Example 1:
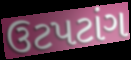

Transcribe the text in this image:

ઉટપટાંગ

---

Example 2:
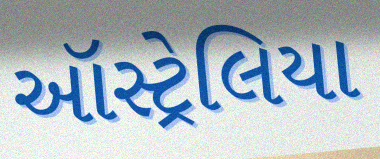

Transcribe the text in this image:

ઑસ્ટ્રેલિયા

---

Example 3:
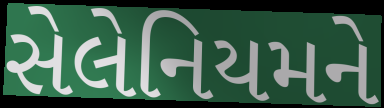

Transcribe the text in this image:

સેલેનિયમને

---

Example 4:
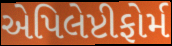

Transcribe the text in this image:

એપિલેપ્ટીફોર્મ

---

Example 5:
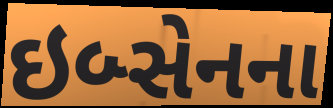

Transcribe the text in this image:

ઇબ્સેનના